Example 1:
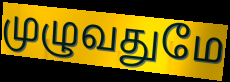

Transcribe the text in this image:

முழுவதுமே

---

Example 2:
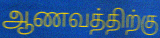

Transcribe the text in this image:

ஆணவத்திற்கு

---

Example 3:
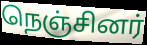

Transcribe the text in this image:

நெஞ்சினர்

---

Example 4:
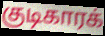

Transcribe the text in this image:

குடிகாரக்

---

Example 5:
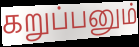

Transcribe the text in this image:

கறுப்பனும்